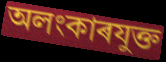
অলংকাৰযুক্ত